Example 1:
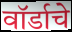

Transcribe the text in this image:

वॉर्डाचे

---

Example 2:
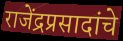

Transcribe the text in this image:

राजेंद्रप्रसादांचे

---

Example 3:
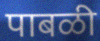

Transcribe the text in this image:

पाबळी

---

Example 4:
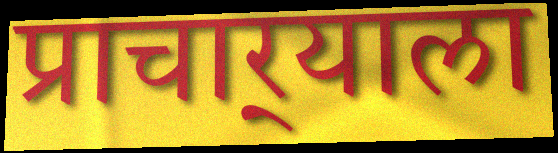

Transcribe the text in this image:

प्राचार्याला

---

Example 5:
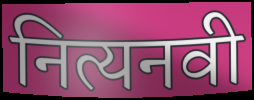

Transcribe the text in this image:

नित्यनवी